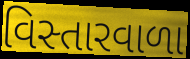
વિસ્તારવાળા